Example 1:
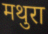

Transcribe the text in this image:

मथुरा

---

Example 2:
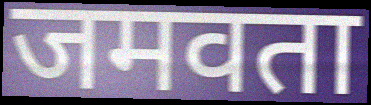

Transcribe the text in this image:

जमवता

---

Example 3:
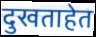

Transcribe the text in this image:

दुखताहेत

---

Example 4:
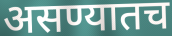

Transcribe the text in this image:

असण्यातच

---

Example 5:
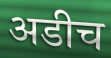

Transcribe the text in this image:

अडीच